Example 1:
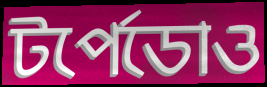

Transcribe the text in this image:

টর্পেডোও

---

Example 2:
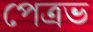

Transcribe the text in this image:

পেত্রভ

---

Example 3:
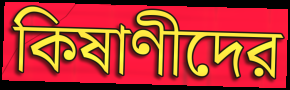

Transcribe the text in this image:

কিষাণীদের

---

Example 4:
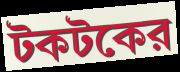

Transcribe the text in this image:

টকটকের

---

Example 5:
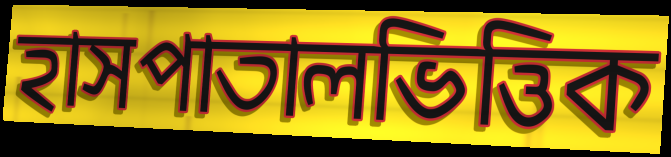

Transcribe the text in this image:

হাসপাতালভিত্তিক